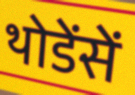
थोडेंसें